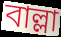
বাল্লা